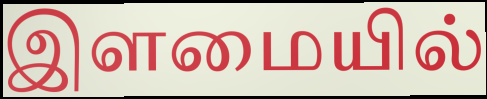
இளமையில்